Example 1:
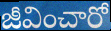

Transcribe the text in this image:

జీవించారో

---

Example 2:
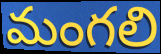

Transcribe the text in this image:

మంగలి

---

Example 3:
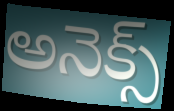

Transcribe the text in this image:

అనెక్స్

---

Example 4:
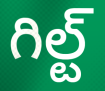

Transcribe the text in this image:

గిల్ట్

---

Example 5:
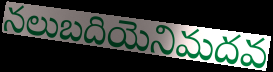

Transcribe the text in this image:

నలుబదియెనిమదవ